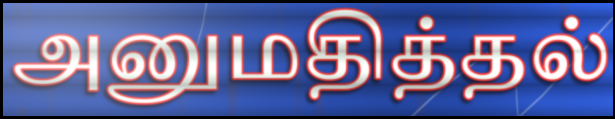
அனுமதித்தல்